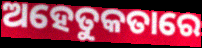
ଅହେତୁକତାରେ